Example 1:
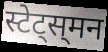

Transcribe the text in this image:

स्टेट्स्‌मन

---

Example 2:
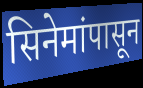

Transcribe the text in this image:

सिनेमांपासून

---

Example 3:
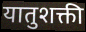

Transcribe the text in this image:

यातुशक्ती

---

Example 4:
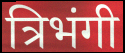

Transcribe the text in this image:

त्रिभंगी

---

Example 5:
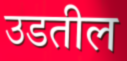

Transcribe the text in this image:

उडतील